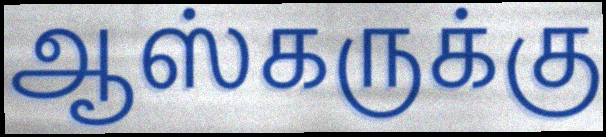
ஆஸ்கருக்கு